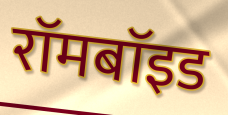
रॉमबॉइड